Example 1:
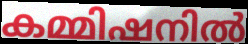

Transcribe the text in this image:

കമ്മിഷനിൽ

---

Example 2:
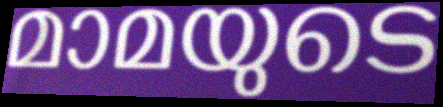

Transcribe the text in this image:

മാമയുടെ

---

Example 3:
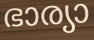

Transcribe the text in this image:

ഭാര്യാ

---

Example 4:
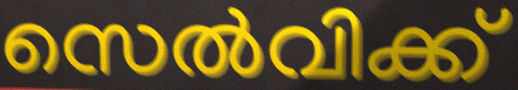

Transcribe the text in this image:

സെൽവിക്ക്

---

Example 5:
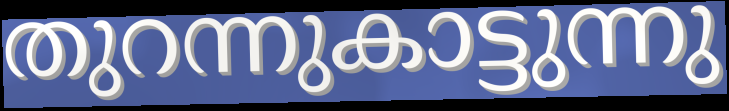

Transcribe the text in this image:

തുറന്നുകാട്ടുന്നു